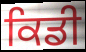
ਕਿਡੀ